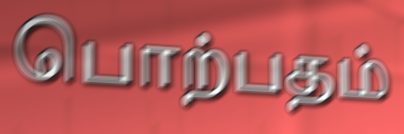
பொற்பதம்